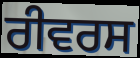
ਰੀਵਰਸ